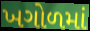
ખગોળમાં